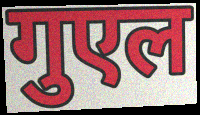
गुएल